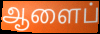
ஆளைப்